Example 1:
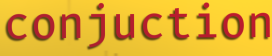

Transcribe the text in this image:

conjuction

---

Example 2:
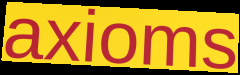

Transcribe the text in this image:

axioms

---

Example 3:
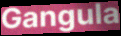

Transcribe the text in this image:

Gangula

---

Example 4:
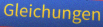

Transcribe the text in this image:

Gleichungen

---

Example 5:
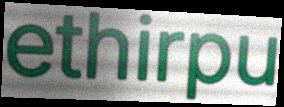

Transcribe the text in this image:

ethirpu